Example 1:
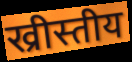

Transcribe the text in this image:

ख्रीस्तीय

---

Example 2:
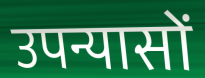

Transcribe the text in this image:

उपन्यासों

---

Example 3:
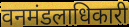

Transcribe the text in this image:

वनमंडलाधिकारी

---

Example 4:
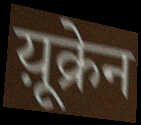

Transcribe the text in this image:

य़ूक्रेन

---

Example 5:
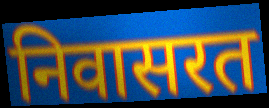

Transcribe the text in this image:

निवासरत